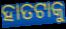
ହାତଟାକୁ